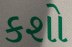
કશો